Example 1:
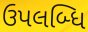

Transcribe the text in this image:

ઉપલબ્ધિ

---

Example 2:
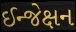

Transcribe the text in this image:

ઈન્જેક્ષન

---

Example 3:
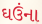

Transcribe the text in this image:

ઘઉંના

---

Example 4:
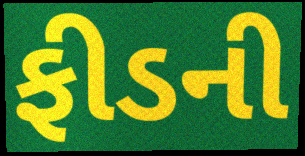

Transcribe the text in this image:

ફીડની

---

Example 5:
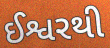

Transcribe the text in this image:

ઈશ્વરથી